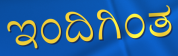
ಇಂದಿಗಿಂತ